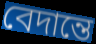
বেদান্তে